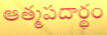
ఆత్మపదార్థం